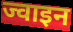
ज्वाइन